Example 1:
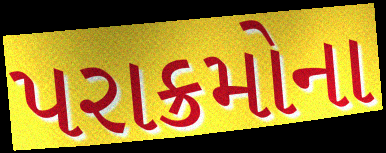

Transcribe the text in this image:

પરાક્રમોના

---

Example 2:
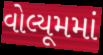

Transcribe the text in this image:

વોલ્યૂમમાં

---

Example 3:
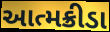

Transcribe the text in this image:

આત્મક્રીડા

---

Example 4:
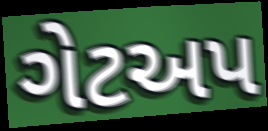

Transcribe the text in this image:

ગેટઅપ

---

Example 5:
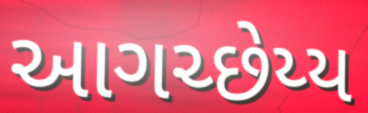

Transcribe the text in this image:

આગચ્છેય્ય